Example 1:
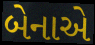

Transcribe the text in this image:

બેનાએ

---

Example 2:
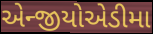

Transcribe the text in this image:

એન્જીયોએડીમા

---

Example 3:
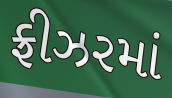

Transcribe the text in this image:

ફ્રીઝરમાં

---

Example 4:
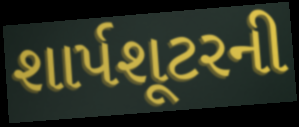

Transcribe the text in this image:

શાર્પશૂટરની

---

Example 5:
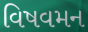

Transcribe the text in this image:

વિષવમન